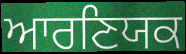
ਆਰਣਿਯਕ